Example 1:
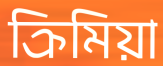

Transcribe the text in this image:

ক্রিমিয়া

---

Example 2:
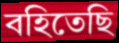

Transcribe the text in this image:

বহিতেছি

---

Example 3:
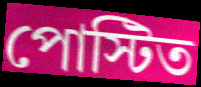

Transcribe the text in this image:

পোস্টিত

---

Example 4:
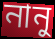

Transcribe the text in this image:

নানু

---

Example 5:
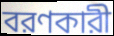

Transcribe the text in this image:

বরণকারী